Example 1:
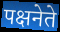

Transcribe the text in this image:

पक्षनेते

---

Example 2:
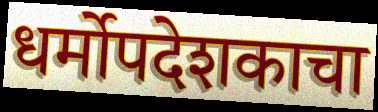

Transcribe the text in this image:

धर्मोपदेशकाचा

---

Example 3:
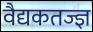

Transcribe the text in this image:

वैद्यकतज्ज्ञ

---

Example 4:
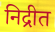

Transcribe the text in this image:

निद्रीत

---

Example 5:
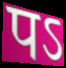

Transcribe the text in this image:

पऽ